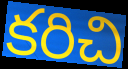
కరిచి